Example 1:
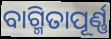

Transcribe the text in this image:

ବାଗ୍ମିତାପୂର୍ଣ୍ଣ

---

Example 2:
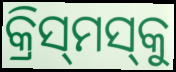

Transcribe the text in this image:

କ୍ରିସ୍‌ମସ୍‌କୁ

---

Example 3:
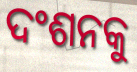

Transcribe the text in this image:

ଦଂଶନକୁ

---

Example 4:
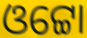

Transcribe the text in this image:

ଓଟ୍ଟୋ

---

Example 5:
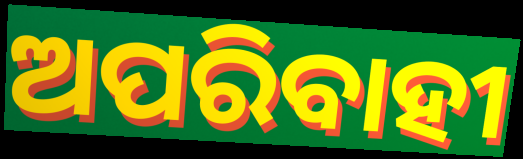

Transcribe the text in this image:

ଅପରିବାହୀ